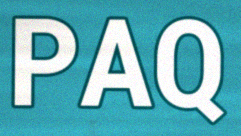
PAQ